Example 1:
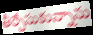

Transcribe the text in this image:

తీర్చేసుకున్నాను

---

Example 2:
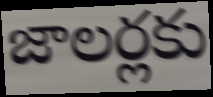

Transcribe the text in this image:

జాలర్లకు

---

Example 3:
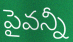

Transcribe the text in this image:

పైవన్నీ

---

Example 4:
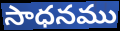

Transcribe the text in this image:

సాధనము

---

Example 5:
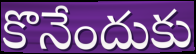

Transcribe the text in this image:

కొనేందుకు